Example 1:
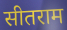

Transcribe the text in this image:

सीतराम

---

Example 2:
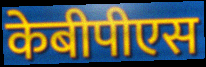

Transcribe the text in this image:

केबीपीएस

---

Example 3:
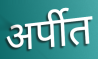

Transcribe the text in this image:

अर्पीत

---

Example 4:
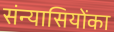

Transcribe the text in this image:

संन्यासियोंका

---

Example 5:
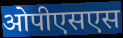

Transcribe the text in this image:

ओपीएसएस